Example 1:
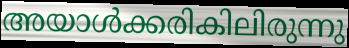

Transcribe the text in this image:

അയാൾക്കരികിലിരുന്നു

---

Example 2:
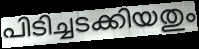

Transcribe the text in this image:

പിടിച്ചടക്കിയതും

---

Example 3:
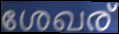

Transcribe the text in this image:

ശേഖര്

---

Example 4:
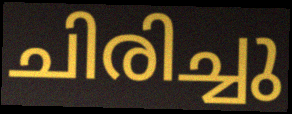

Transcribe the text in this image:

ചിരിച്ചു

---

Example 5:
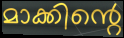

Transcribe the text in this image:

മാക്കിന്റെ